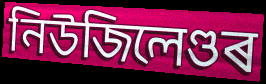
নিউজিলেণ্ডৰ